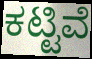
ಕಟ್ಟಿವೆ